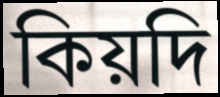
কিয়দি